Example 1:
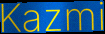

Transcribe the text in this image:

Kazmi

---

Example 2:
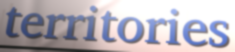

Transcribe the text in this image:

territories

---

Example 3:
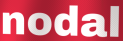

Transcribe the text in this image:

nodal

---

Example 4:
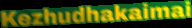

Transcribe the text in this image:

Kezhudhakaimai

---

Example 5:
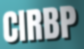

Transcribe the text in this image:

CIRBP